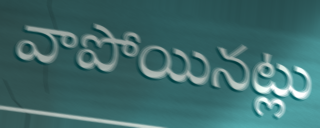
వాపోయినట్లు